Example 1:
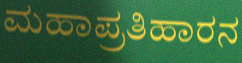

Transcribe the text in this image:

ಮಹಾಪ್ರತಿಹಾರನ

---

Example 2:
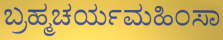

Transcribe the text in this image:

ಬ್ರಹ್ಮಚರ್ಯಮಹಿಂಸಾ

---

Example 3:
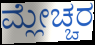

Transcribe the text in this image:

ಮ್ಲೇಚ್ಚರ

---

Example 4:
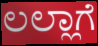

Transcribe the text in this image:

ಲಲ್ಲಾಗೆ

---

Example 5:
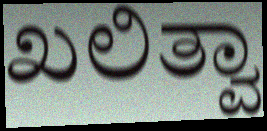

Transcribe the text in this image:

ಖಲಿತ್ವಾ